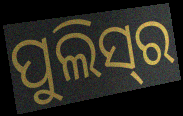
ପୁଲିସ୍‌ର